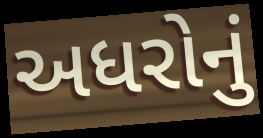
અધરોનું